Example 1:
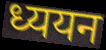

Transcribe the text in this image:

ध्ययन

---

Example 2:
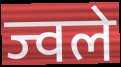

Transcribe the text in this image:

ज्वले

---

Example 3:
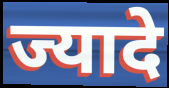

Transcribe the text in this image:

ज्यादे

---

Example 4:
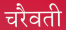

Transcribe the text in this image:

चरैवती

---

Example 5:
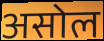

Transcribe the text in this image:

असोल